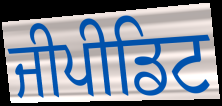
ਜੀਪੀਡਿਟ